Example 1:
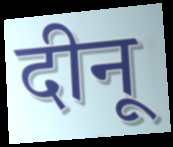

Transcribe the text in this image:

दीनू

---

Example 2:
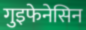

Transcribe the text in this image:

गुइफेनेसिन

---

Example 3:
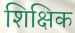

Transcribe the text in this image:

शिक्षिक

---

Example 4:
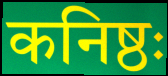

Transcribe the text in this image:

कनिष्ठः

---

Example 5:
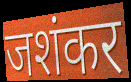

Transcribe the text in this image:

जशंकर